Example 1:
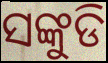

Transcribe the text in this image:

ସଙ୍କୁଡି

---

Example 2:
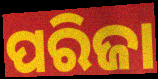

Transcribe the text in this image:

ପରିଜା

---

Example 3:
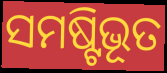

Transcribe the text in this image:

ସମଷ୍ଟିଭୂତ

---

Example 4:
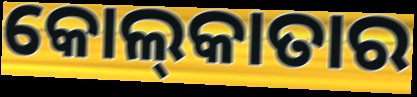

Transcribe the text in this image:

କୋଲ୍‌କାତାର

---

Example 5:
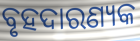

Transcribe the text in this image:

ବୃହଦାରଣ୍ୟକ